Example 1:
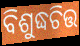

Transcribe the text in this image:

ବିଶୁଦ୍ଧଚିତ୍ତ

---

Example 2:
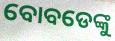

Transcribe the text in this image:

ବୋବଡେଙ୍କୁ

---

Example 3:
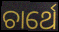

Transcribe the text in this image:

ଚାର୍ଥେ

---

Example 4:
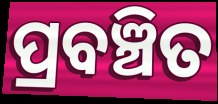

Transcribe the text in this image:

ପ୍ରବଞ୍ଚିତ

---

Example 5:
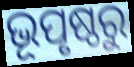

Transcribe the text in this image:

ଭୂପୃଷ୍ଠରୁ